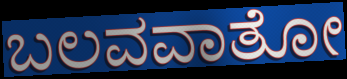
ಬಲವವಾತೋ